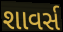
શાવર્સ